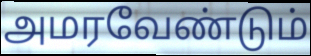
அமரவேண்டும்